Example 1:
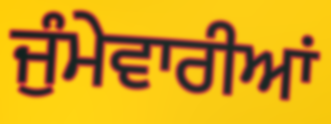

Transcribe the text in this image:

ਜੁੰਮੇਵਾਰੀਆਂ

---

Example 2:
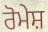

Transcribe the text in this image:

ਰੋਮੇਸ਼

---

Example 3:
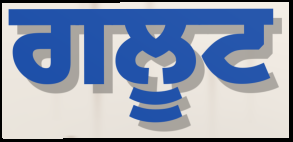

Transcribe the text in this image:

ਗਲੂਟ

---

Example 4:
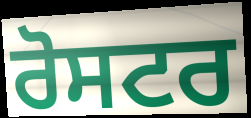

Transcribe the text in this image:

ਰੋਸਟਰ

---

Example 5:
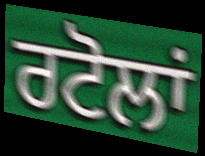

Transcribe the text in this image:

ਰਟੋਲਾਂ